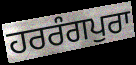
ਹਰਰੰਗਪੁਰਾ